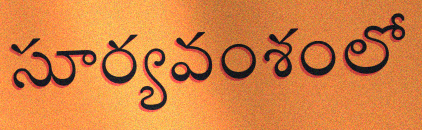
సూర్యవంశంలో